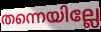
തന്നെയില്ലേ